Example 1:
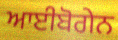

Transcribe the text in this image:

ਆਈਬੋਗੇਨ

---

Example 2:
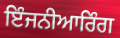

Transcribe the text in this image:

ਇੰਜਨੀਆਰਿੰਗ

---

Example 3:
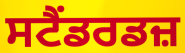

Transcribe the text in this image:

ਸਟੈਂਡਰਡਜ਼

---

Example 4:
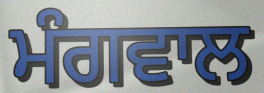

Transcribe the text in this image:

ਮੰਗਵਾਲ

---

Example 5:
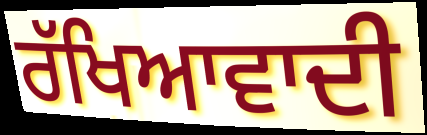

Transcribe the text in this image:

ਰੱਖਿਆਵਾਦੀ